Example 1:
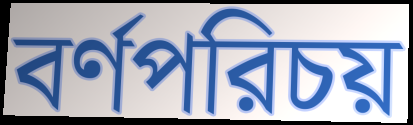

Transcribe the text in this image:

বর্ণপরিচয়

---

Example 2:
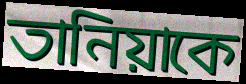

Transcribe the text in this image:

তানিয়াকে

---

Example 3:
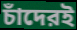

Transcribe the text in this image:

চাঁদেরই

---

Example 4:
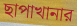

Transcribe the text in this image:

ছাপাখানার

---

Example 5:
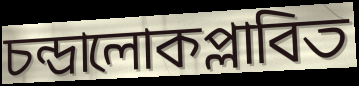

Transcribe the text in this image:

চন্দ্রালোকপ্লাবিত